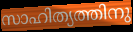
സാഹിത്യത്തിനു